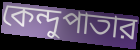
কেন্দুপাতার